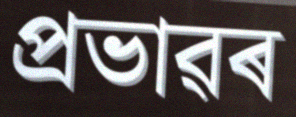
প্ৰভাৱৰ